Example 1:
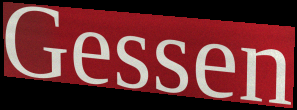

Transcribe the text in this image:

Gessen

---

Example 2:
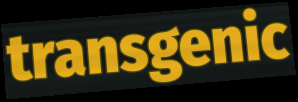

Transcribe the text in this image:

transgenic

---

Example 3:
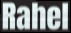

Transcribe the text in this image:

Rahel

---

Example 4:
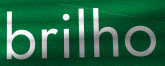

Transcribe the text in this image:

brilho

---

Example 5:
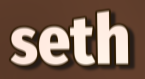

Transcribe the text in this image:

seth